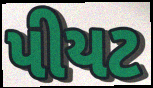
પીયટ